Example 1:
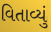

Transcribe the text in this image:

વિતાવ્યું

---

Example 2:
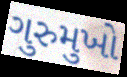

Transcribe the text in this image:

ગુરુમુખો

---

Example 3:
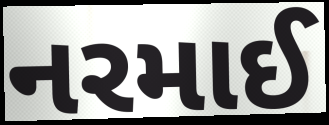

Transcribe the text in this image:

નરમાઈ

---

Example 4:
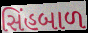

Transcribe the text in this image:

સિંહબાળ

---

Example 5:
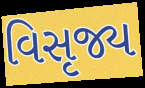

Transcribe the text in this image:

વિસૃજ્ય